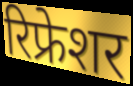
रिफ्रेशर